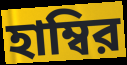
হাম্বির